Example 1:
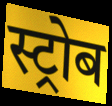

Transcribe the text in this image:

स्ट्रोब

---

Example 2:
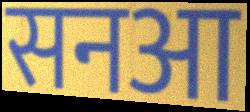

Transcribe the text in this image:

सनआ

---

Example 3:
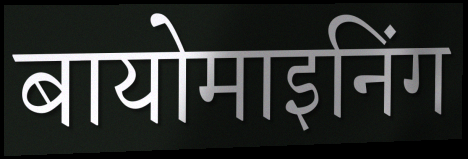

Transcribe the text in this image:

बायोमाइनिंग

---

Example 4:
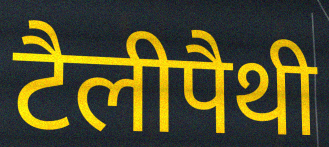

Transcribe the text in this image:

टैलीपैथी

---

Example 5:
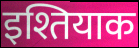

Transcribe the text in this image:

इश्तियाक